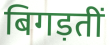
बिगड़तीं